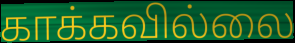
காக்கவில்லை